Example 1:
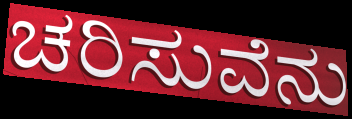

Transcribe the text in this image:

ಚರಿಸುವೆನು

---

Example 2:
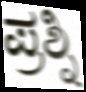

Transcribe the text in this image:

ಪ್ರಶ್ನಿ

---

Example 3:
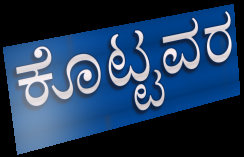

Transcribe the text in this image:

ಕೊಟ್ಟವರ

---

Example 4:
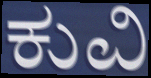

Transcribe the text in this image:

ಕುವಿ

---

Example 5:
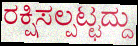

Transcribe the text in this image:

ರಕ್ಷಿಸಲ್ಪಟ್ಟದ್ದು